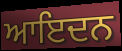
ਆਇਦਨ